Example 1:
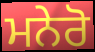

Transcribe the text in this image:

ਮਨੇਰੋ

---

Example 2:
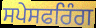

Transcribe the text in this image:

ਸਪੇਸਫਰਿੰਗ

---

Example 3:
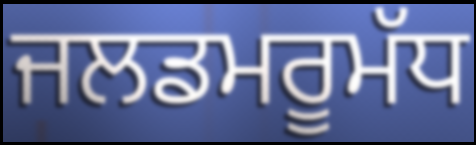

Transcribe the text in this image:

ਜਲਡਮਰੂਮੱਧ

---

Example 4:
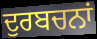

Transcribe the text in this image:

ਦੁਰਬਚਨਾਂ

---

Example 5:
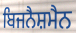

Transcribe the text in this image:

ਬਿਜਨੈਸ਼ਮੈਨ